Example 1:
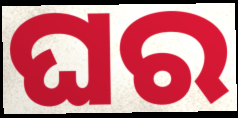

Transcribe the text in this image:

ଘର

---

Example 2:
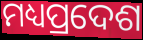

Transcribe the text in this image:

ମଧ୍ୟପ୍ରଦେଶ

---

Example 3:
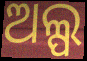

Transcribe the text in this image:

ଅଲ୍ପ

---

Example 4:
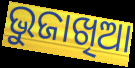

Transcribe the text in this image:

ଭୁଜାଖିଆ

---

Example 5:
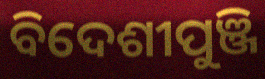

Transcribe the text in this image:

ବିଦେଶୀପୁଞ୍ଜି